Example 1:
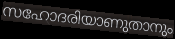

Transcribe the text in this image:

സഹോദരിയാണുതാനും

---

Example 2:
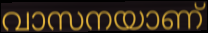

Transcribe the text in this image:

വാസനയാണ്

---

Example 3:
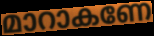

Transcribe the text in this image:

മാറാകണേ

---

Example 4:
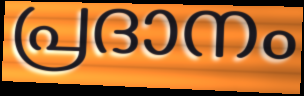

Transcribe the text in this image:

പ്രദാനം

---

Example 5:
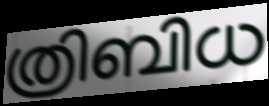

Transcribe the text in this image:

ത്രിബിധ